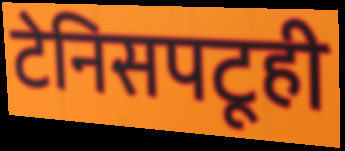
टेनिसपटूही